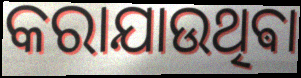
କରାଯାଉଥିଵା